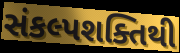
સંકલ્પશક્તિથી